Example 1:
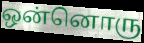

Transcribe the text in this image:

ஒன்னொரு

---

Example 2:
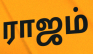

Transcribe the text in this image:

ராஜம்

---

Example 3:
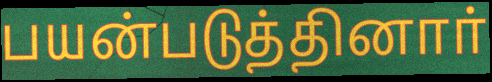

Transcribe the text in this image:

பயன்படுத்தினார்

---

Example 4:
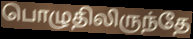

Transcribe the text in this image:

பொழுதிலிருந்தே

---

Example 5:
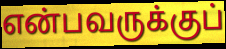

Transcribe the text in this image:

என்பவருக்குப்